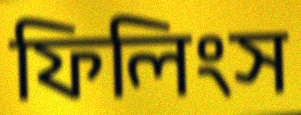
ফিলিংস